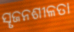
ସୄଜନଶୀଳତା